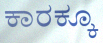
ಕಾರಕ್ಕೂ